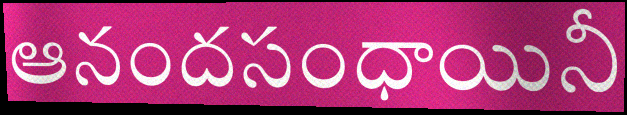
ఆనందసంధాయినీ